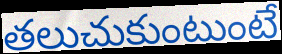
తలుచుకుంటుంటే